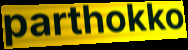
parthokko